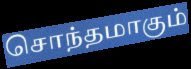
சொந்தமாகும்